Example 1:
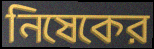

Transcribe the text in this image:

নিষেকের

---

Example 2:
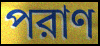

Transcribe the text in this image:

পরাণ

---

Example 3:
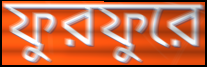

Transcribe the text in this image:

ফুরফুরে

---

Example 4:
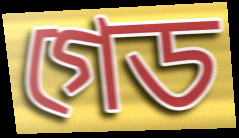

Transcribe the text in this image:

গেড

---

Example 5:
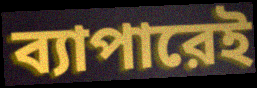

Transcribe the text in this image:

ব্যাপারেই